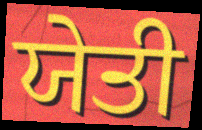
ਯੇਤੀ